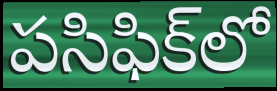
పసిఫిక్‌లో